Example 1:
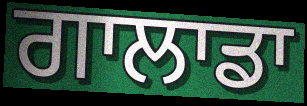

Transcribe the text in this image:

ਗਾਲਾਡਾ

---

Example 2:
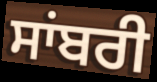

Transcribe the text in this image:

ਸਾਂਬਰੀ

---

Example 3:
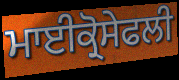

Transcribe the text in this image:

ਮਾਈਕ੍ਰੋਸੇਫਲੀ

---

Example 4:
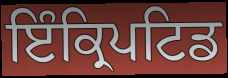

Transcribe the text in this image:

ਇੰਕ੍ਰਿਪਟਿਡ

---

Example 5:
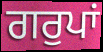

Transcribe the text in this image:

ਗਰੁਪਾਂ